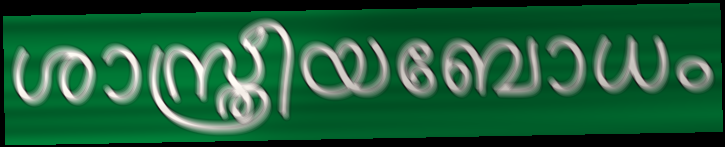
ശാസ്ത്രീയബോധം